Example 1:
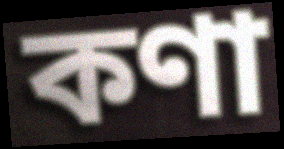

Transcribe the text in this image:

কণা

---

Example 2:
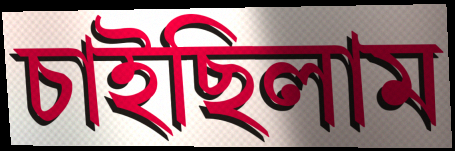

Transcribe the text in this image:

চাইছিলাম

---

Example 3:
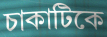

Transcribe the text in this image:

চাকাটিকে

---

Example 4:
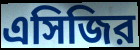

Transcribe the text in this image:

এসিজির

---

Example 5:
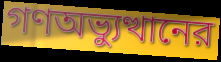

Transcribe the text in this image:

গণঅভ্যুত্থানের